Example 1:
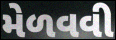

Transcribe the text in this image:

મેળવવી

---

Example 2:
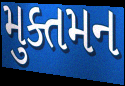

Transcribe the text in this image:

મુક્તમન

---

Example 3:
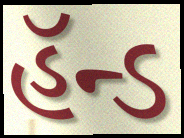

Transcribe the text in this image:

હૅન્ડ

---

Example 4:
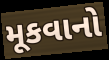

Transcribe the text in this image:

મૂકવાનો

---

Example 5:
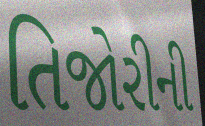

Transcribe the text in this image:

તિજોરીની